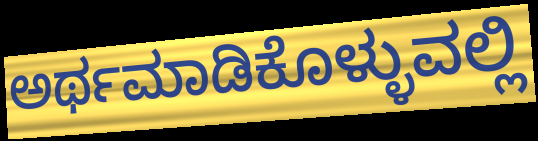
ಅರ್ಥಮಾಡಿಕೊಳ್ಳುವಲ್ಲಿ